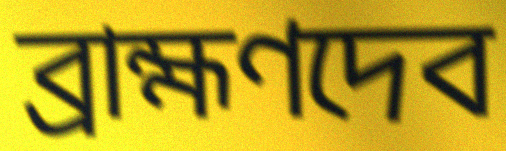
ব্রাহ্মণদেব